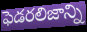
ఫెడరలిజాన్ని